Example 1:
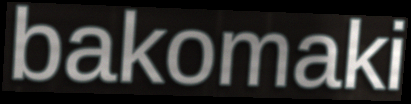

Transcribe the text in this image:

bakomaki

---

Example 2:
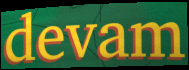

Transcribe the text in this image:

devam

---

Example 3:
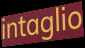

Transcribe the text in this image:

intaglio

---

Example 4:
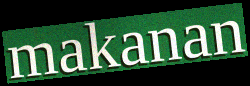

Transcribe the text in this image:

makanan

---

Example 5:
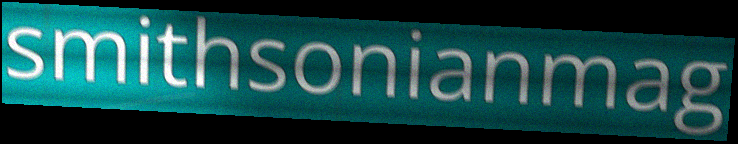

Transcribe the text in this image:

smithsonianmag